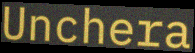
Unchera